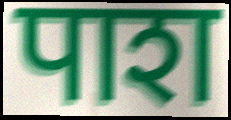
पाश